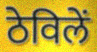
ठेविलें